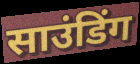
साउंडिंग